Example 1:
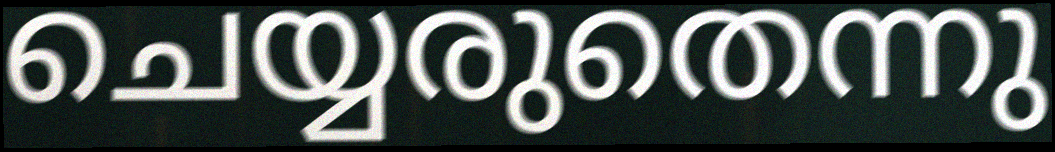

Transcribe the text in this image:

ചെയ്യരുതെന്നു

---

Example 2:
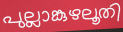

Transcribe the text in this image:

പുല്ലാങ്കുഴലൂതി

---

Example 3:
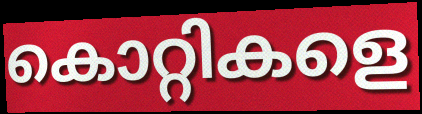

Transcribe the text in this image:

കൊറ്റികളെ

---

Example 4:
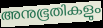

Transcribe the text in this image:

അനുഭൂതികളും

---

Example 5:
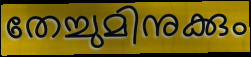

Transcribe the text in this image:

തേച്ചുമിനുക്കും